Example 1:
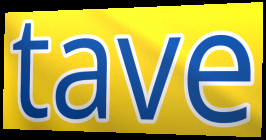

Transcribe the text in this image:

tave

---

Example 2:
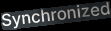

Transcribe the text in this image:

Synchronized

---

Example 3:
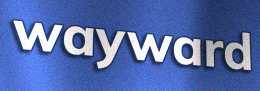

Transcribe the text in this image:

wayward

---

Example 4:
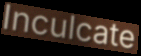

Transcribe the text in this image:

Inculcate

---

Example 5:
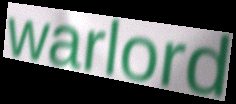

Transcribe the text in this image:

warlord